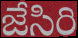
జేసిరి